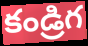
కండ్రిగ